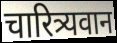
चारित्र्यवान